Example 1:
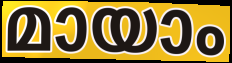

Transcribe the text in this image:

മായാം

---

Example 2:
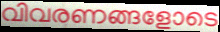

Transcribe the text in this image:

വിവരണങ്ങളോടെ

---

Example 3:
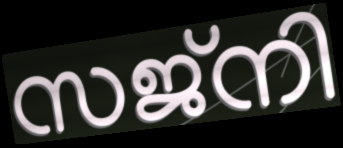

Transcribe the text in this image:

സജ്നി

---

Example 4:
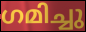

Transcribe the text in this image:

ഗമിച്ചു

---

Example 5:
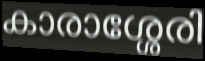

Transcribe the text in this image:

കാരാശ്ശേരി